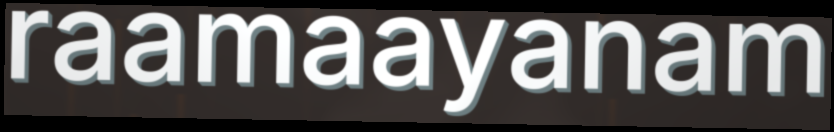
raamaayanam